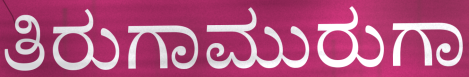
ತಿರುಗಾಮುರುಗಾ